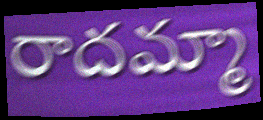
రాదమ్మా